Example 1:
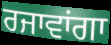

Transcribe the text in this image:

ਰਜਾਵਾਂਗਾ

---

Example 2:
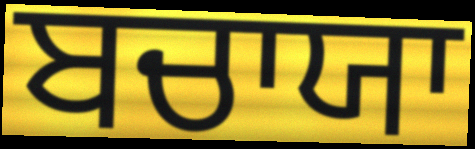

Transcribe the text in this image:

ਬਚਾਯਾ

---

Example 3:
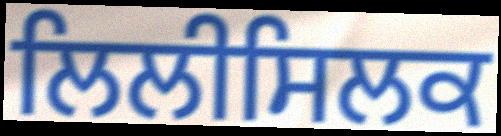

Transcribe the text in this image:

ਲਿਲੀਸਿਲਕ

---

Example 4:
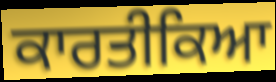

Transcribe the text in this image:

ਕਾਰਤੀਕਿਆ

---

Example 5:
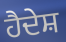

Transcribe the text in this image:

ਹੈਦੇਸ਼